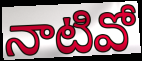
నాటివో